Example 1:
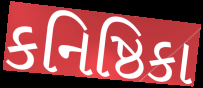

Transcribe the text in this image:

કનિષ્ઠિકા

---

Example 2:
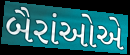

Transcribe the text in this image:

બૈરાંઓએ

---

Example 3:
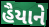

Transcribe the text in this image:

હૈયાને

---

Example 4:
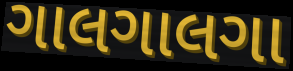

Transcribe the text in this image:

ગાલગાલગા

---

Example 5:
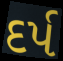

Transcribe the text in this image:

દર્પ